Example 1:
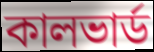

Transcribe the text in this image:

কালভার্ড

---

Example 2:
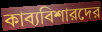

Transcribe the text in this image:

কাব্যবিশারদের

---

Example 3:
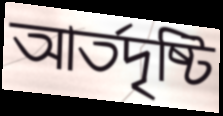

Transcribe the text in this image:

আর্তদৃষ্টি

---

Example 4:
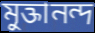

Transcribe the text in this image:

মুক্তানন্দ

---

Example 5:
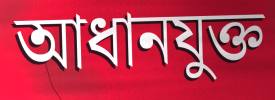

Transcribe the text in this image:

আধানযুক্ত